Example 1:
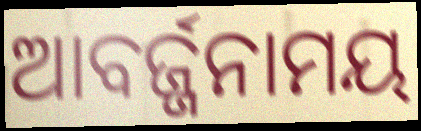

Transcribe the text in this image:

ଆବର୍ଜ୍ଜନାମୟ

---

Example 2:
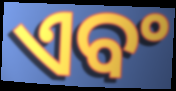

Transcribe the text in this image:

ଏବଂ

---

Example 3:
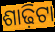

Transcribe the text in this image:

ଶାଢ଼ିଟା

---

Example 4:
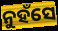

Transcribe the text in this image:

ନୁହଁସେ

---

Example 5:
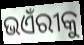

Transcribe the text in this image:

ଭଏଁରୀକୁ